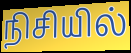
நிசியில்